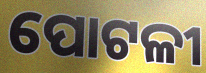
ପୋଟଳୀ